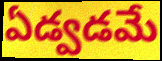
ఏడ్వడమే